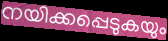
നയിക്കപ്പെടുകയും